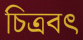
চিত্রবৎ